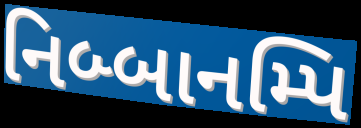
નિબ્બાનમ્પિ